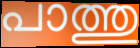
പാത്തു